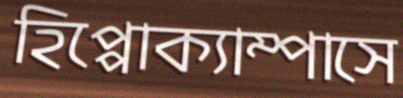
হিপ্পোক্যাম্পাসে